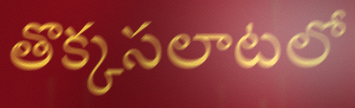
తొక్కసలాటలో